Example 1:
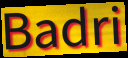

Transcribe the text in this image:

Badri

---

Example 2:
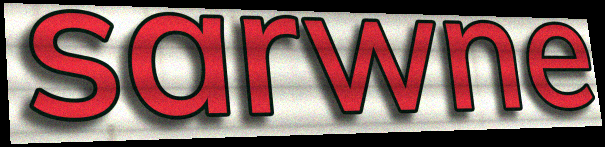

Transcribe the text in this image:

sarwne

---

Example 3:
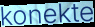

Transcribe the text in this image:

konekte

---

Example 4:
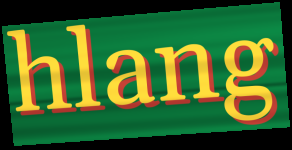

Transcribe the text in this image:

hlang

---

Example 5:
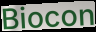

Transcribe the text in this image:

Biocon